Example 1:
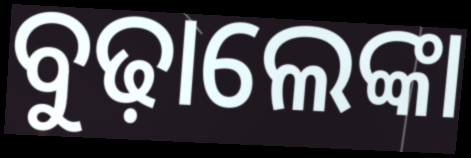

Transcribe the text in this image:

ବୁଢ଼ାଲେଙ୍କା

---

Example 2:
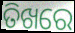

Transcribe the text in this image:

ତିଖରେ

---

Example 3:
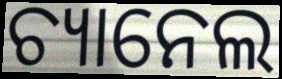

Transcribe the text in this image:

ଚ୍ୟାନେଲ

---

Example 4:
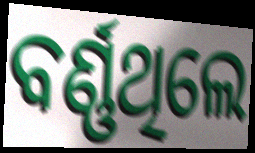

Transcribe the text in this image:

ବର୍ଣ୍ଣଥିଲେ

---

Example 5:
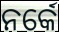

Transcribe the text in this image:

ନର୍କେ